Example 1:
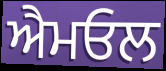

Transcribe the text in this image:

ਐਮਓਲ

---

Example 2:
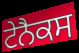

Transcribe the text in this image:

ਟੇਨੈਕਸ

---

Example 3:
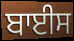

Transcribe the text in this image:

ਬਾਈਸ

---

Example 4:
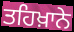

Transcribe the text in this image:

ਤਹਿਖ਼ਾਨੇ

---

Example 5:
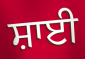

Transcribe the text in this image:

ਸ਼ਾਈ